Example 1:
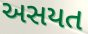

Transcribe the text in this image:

અસયત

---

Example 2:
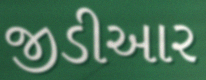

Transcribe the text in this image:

જીડીઆર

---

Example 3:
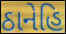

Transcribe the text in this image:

ઠાનેહિ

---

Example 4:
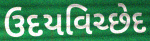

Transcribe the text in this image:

ઉદયવિચ્છેદ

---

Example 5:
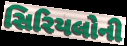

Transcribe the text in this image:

સિરિયલોની